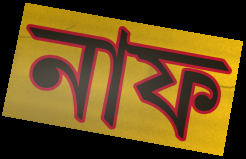
নাফ